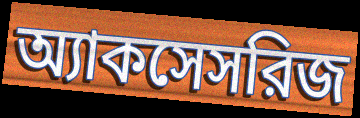
অ্যাকসেসরিজ